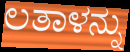
ಲತಾಳನ್ನು